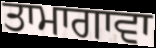
ਤਾਮਾਗਾਵਾ